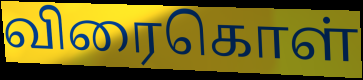
விரைகொள்